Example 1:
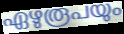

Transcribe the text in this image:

ഏഴുരൂപയും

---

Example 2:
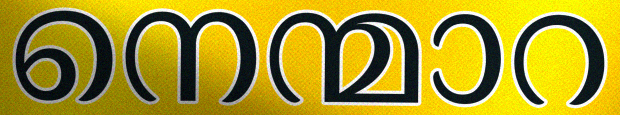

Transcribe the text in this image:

നെന്മാറ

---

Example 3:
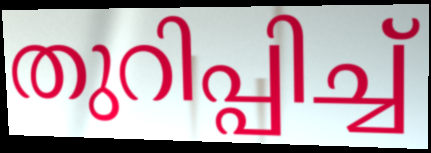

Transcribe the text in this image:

തുറിപ്പിച്ച്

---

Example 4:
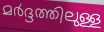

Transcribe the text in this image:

മർദ്ദത്തിലുള്ള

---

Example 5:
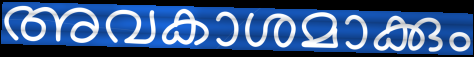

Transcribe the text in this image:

അവകാശമാക്കും